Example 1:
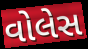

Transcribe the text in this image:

વોલેસ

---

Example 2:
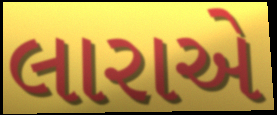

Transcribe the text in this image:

લારાએ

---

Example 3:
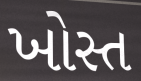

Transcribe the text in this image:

ખોસ્ત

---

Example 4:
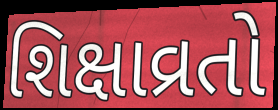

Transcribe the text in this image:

શિક્ષાવ્રતો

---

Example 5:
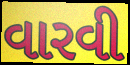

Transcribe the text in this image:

વારવી